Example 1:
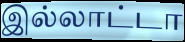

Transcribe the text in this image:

இல்லாட்டா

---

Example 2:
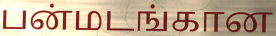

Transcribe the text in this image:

பன்மடங்கான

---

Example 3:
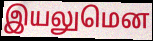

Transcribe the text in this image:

இயலுமென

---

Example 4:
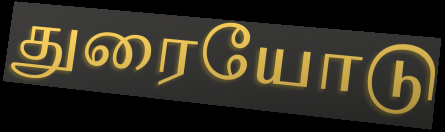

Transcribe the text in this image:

துரையோடு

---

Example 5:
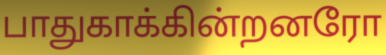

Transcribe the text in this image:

பாதுகாக்கின்றனரோ